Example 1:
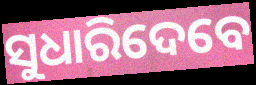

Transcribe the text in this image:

ସୁଧାରିଦେବେ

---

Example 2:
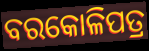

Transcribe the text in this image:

ବରକୋଳିପତ୍ର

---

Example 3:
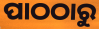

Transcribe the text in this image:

ପାଠଠାରୁ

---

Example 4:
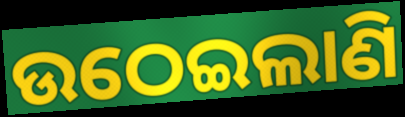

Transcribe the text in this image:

ଉଠେଇଲାଣି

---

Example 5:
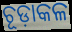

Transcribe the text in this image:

ଚୂଡ଼ାକଳ